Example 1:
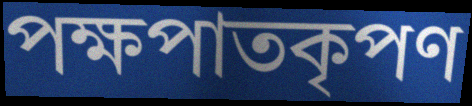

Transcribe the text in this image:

পক্ষপাতকৃপণ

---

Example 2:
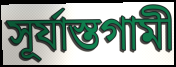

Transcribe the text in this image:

সূর্যাস্তগামী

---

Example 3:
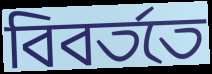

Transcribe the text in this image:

বিবর্ততে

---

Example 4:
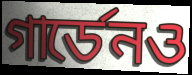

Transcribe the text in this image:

গার্ডেনও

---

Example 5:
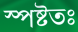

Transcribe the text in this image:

স্পষ্টতঃ